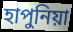
হাপুনিয়া